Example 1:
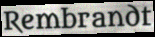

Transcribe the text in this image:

Rembrandt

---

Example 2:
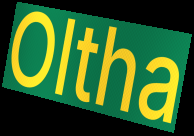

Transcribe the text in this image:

Oltha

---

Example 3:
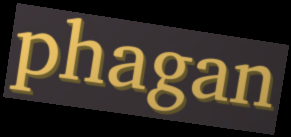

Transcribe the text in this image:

phagan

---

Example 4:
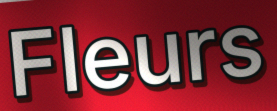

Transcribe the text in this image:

Fleurs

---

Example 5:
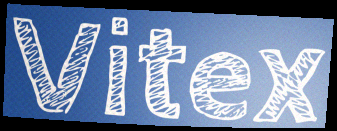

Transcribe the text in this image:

Vitex